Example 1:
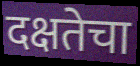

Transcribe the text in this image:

दक्षतेचा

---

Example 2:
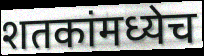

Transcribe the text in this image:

शतकांमध्येच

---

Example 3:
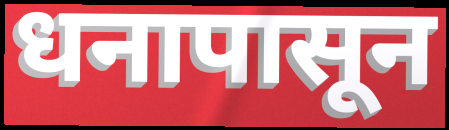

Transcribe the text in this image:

धनापासून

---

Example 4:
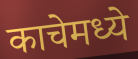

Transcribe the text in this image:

काचेमध्ये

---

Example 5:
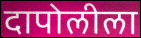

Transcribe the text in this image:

दापोलीला